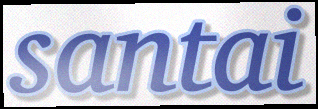
santai